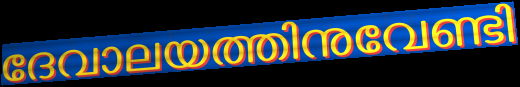
ദേവാലയത്തിനുവേണ്ടി